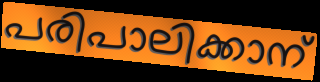
പരിപാലിക്കാന്